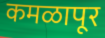
कमळापूर